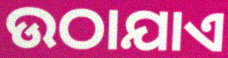
ଉଠାଯାଏ